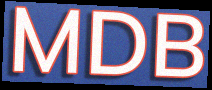
MDB